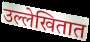
उल्लेखितात